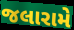
જલારામે